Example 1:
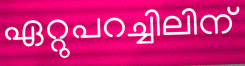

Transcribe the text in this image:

ഏറ്റുപറച്ചിലിന്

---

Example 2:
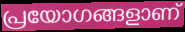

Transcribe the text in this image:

പ്രയോഗങ്ങളാണ്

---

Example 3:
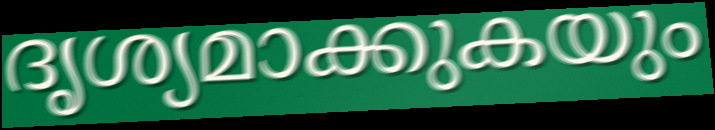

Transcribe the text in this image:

ദൃശ്യമാക്കുകയും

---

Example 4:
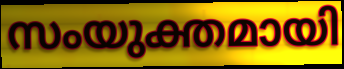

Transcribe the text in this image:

സംയുക്തമായി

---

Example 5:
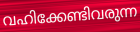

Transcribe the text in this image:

വഹിക്കേണ്ടിവരുന്ന